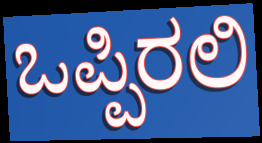
ಒಪ್ಪಿರಲಿ